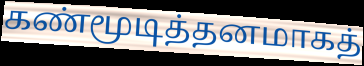
கண்மூடித்தனமாகத்